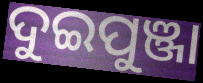
ଦୁଇପୁଞ୍ଜା